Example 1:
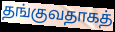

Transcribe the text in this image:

தங்குவதாகத்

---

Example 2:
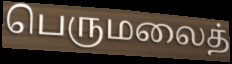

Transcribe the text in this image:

பெருமலைத்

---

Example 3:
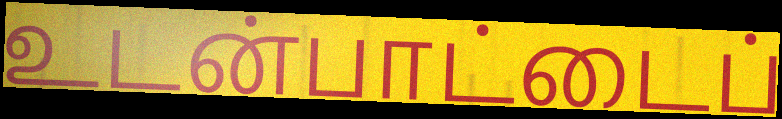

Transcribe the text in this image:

உடன்பாட்டைப்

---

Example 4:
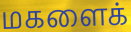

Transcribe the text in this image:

மகளைக்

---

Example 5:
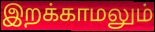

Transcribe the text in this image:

இறக்காமலும்